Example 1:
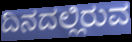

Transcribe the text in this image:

ದಿನದಲ್ಲಿರುವ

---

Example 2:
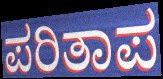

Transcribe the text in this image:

ಪರಿತಾಪ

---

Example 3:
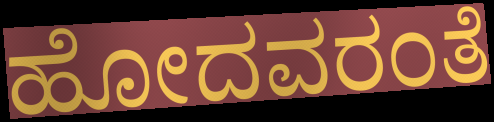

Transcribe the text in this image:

ಹೋದವರಂತೆ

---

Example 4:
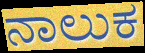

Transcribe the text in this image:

ನಾಲುಕ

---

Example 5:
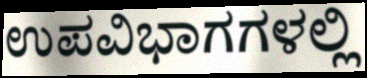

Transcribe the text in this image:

ಉಪವಿಭಾಗಗಳಲ್ಲಿ